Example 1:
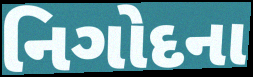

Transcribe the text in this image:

નિગોદના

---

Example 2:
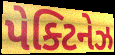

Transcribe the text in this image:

પેક્ટિનેઝ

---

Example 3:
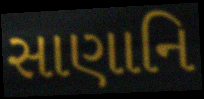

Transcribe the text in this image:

સાણાનિ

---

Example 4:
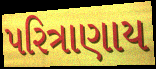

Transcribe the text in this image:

પરિત્રાણાય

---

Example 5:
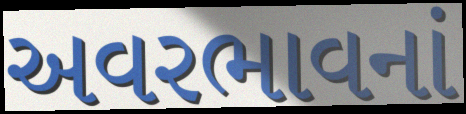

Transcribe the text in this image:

અવરભાવનાં